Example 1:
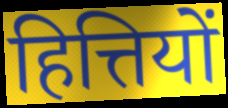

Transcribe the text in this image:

हित्तियों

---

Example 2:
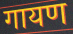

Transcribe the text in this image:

गायण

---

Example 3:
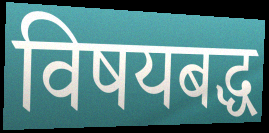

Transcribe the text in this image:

विषयबद्ध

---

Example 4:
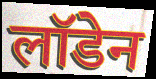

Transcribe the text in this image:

लॉडेन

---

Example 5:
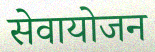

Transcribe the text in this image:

सेवायोजन